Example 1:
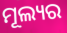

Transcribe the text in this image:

ମୂଲ୍ୟର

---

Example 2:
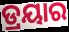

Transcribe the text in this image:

ଡ୍ରୟାର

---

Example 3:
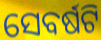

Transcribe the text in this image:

ସେବର୍ଷଟି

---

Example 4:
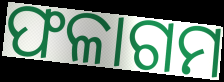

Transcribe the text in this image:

ଫଳାଗମ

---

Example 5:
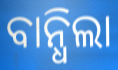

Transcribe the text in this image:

ବାନ୍ଧିଲା